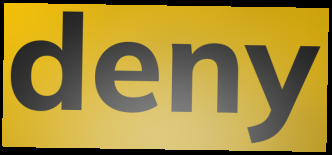
deny